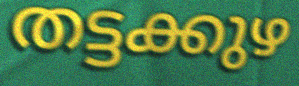
തട്ടക്കുഴ